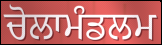
ਚੋਲਾਮੰਡਲਮ